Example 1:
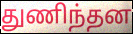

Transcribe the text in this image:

துணிந்தன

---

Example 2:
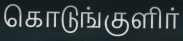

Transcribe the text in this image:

கொடுங்குளிர்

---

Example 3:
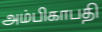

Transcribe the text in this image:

அம்பிகாபதி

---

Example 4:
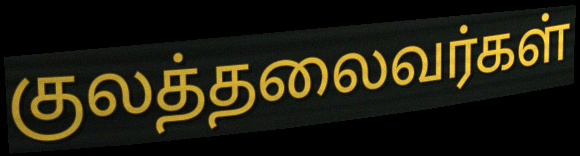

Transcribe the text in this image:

குலத்தலைவர்கள்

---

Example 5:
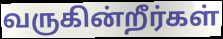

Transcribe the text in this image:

வருகின்றீர்கள்